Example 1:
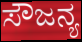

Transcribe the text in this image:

ಸೌಜನ್ಯ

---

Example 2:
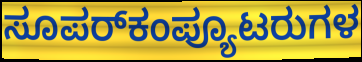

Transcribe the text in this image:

ಸೂಪರ್‌ಕಂಪ್ಯೂಟರುಗಳ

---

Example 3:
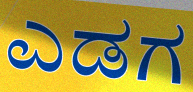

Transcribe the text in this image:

ಎಡಗ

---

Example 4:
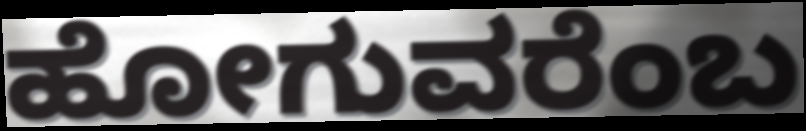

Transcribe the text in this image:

ಹೋಗುವರೆಂಬ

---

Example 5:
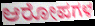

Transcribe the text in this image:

ಆರೋಪಗಳ